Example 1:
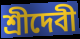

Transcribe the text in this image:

শ্রীদেবী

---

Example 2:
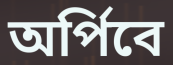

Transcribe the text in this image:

অর্পিবে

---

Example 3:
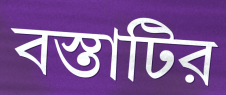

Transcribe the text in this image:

বস্তাটির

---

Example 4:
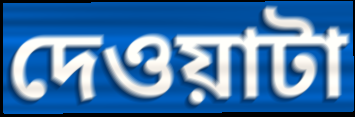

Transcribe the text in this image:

দেওয়াটা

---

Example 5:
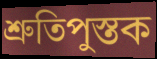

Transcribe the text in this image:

শ্রুতিপুস্তক